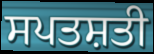
ਸਪਤਸ਼ਤੀ